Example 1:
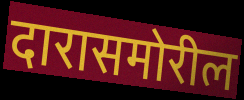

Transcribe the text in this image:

दारासमोरील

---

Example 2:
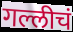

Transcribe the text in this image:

गल्लीचं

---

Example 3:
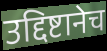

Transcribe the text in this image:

उद्दिष्टानेच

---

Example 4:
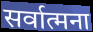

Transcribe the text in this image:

सर्वात्मना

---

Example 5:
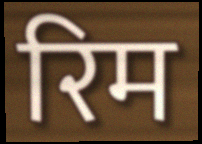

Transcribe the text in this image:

रिम